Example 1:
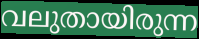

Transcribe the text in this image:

വലുതായിരുന്ന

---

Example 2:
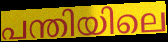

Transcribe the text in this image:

പന്തിയിലെ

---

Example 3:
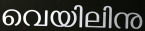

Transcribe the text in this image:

വെയിലിനു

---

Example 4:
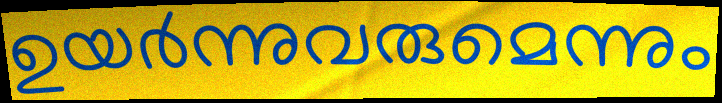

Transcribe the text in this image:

ഉയർന്നുവരുമെന്നും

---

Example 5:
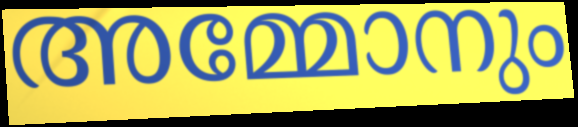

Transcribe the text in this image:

അമ്മോനും